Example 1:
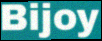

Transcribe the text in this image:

Bijoy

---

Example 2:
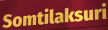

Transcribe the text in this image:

Somtilaksuri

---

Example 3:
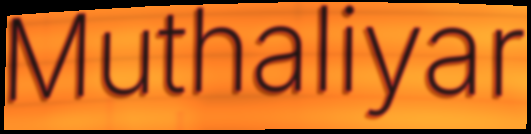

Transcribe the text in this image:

Muthaliyar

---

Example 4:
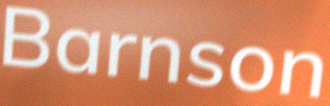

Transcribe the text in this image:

Barnson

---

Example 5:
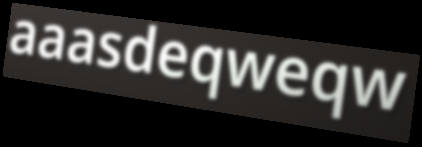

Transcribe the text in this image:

aaasdeqweqw